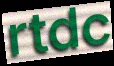
rtdc